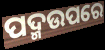
ପଦ୍ମଉପରେ